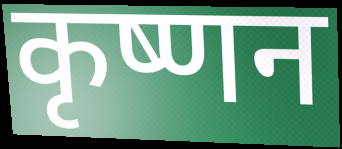
कृष्णन